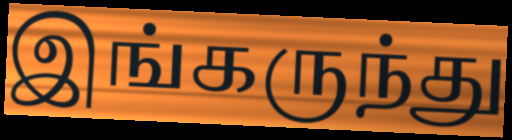
இங்கருந்து